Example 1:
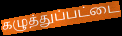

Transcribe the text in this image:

கழுத்துப்பட்டை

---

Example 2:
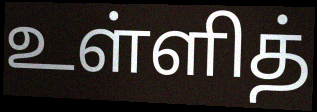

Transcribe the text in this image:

உள்ளித்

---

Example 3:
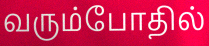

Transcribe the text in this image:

வரும்போதில்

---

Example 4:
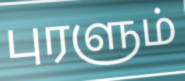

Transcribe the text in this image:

புரளும்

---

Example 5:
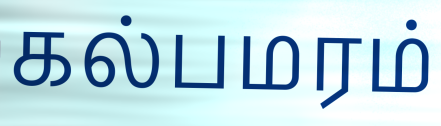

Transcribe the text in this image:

கல்பமரம்